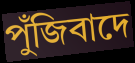
পুঁজিবাদে